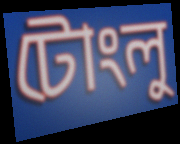
টোংলু